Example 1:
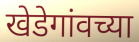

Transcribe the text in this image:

खेडेगांवच्या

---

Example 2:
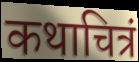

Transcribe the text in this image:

कथाचित्रं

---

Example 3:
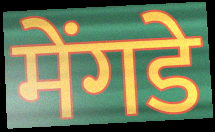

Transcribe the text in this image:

मेंगडे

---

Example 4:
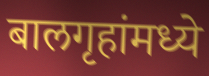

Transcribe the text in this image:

बालगृहांमध्ये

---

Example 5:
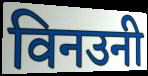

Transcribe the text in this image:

विनउनी